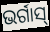
ଭର୍ଗାସ୍